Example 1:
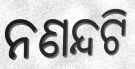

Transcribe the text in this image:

ନଣନ୍ଦଟି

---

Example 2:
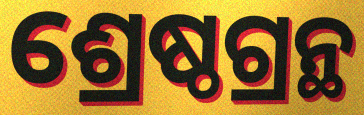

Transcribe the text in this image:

ଶ୍ରେଷ୍ଠଗ୍ରନ୍ଥ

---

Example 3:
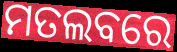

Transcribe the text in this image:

ମତଲବରେ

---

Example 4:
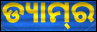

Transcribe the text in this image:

ଡ୍ୟାମ୍‍ର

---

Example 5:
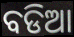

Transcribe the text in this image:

ବଡିଆ